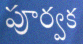
పూర్వక